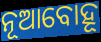
ନୂଆବୋହୂ